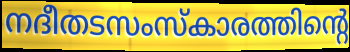
നദീതടസംസ്കാരത്തിന്റെ